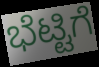
ಭೆಟ್ಟಿಗೆ